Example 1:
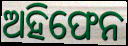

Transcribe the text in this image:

ଅହିଫେନ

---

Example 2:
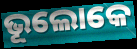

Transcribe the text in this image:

ଭୂଲୋକେ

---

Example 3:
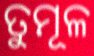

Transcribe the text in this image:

ତୁମୂଳ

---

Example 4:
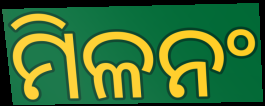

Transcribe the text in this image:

ମିଳନଂ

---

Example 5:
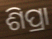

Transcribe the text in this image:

ଶିପ୍ରା